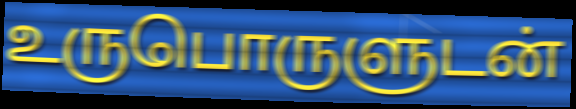
உருபொருளுடன்